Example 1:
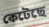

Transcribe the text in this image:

কেটেছে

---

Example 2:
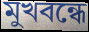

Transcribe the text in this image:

মুখবন্ধে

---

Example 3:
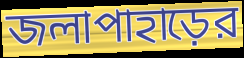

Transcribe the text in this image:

জলাপাহাড়ের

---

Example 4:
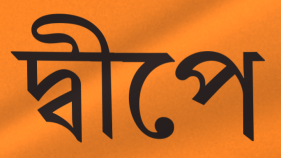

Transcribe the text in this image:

দ্বীপে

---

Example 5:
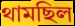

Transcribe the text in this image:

থামছিল